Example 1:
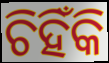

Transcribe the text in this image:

ଚିହିଁକି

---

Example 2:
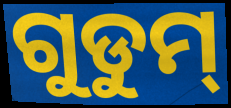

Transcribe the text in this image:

ଗୁଡୁମ୍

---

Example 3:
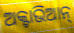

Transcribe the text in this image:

ଅକ୍ଟାଭିଆନ୍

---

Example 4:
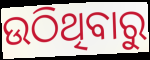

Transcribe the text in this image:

ଉଠିଥିବାରୁ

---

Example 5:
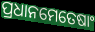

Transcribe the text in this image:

ପ୍ରଧାନମେତେଷାଂ